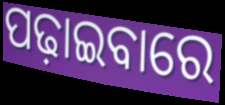
ପଢ଼ାଇବାରେ